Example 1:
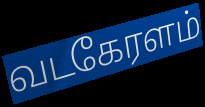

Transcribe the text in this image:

வடகேரளம்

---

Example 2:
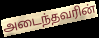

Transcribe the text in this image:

அடைந்தவரின்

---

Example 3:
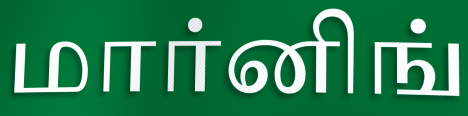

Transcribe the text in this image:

மார்னிங்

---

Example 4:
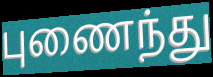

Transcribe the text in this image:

புணைந்து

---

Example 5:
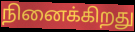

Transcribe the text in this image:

நினைக்கிறது